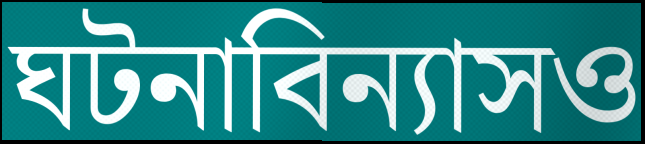
ঘটনাবিন্যাসও